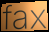
fax